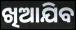
ଖିଆଯିବ